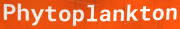
Phytoplankton